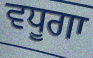
ਵਧੂਗਾ